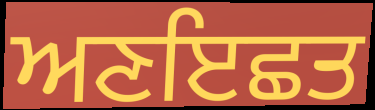
ਅਣਇਛਤ